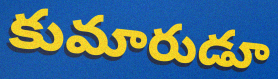
కుమారుడూ